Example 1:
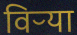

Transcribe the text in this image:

विऱ्या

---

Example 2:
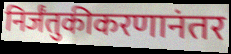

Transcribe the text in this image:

निर्जंतुकीकरणानंतर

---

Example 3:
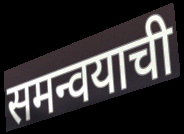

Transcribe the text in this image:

समन्वयाची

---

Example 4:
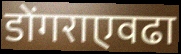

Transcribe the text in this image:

डोंगराएवढा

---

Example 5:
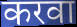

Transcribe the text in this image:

करवा